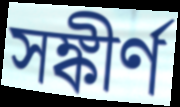
সঙ্কীর্ণ